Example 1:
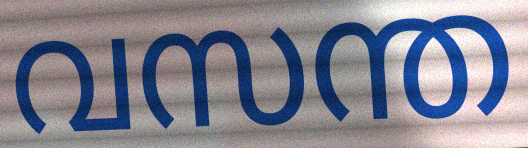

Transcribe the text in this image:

വസന്ത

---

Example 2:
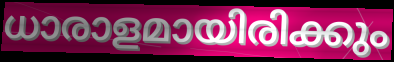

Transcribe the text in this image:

ധാരാളമായിരിക്കും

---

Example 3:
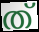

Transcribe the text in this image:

ത്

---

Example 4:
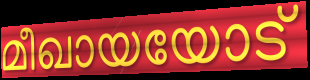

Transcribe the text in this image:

മീഖായയോട്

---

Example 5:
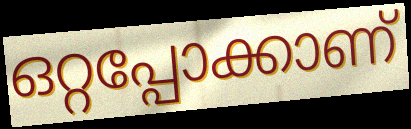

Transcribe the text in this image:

ഒറ്റപ്പോക്കാണ്